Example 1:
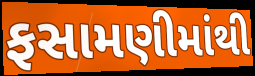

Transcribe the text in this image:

ફસામણીમાંથી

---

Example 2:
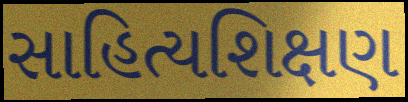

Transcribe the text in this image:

સાહિત્યશિક્ષણ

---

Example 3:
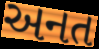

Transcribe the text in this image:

અનત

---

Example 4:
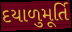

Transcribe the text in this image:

દયાળુમૂર્તિ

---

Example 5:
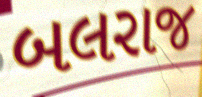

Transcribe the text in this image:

બલરાજ